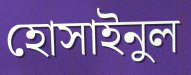
হোসাইনুল